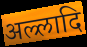
अल्लादि